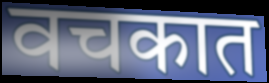
वचकात